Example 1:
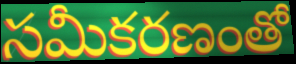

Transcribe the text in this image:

సమీకరణంతో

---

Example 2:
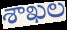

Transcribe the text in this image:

శాఖల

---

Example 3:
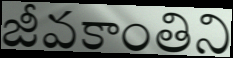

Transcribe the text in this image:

జీవకాంతిని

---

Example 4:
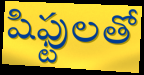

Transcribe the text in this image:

షిఫ్టులతో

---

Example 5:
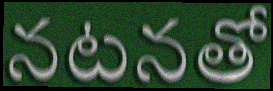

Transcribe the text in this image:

నటనతో